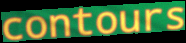
contours